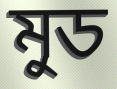
মুড